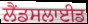
ਲੈਂਡਸਲਾਈਡ